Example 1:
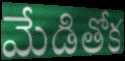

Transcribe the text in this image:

మేడితోక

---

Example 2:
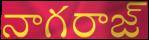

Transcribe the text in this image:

నాగరాజ్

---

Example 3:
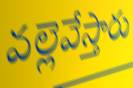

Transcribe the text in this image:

వల్లెవేస్తారు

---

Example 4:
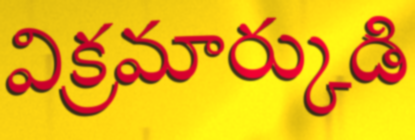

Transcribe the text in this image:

విక్రమార్కుడి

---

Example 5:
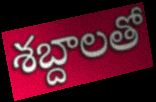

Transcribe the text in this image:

శబ్దాలతో